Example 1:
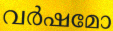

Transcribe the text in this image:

വർഷമോ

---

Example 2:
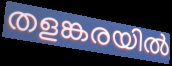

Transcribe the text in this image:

തളങ്കരയിൽ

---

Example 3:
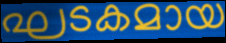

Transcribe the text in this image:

ഘടകമായ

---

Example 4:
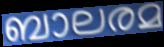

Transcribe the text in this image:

ബാലരമ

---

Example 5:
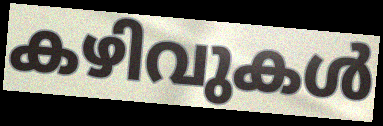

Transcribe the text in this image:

കഴിവുകൾ